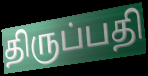
திருப்பதி